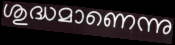
ശുദ്ധമാണെന്നു